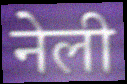
नेली